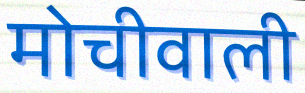
मोचीवाली